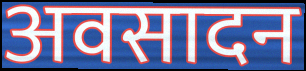
अवसादन